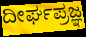
ದೀರ್ಘಪ್ರಜ್ಞ